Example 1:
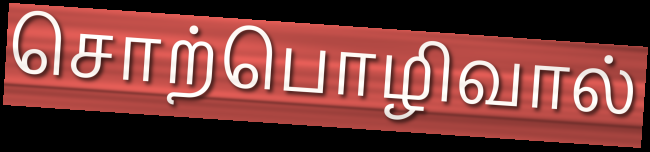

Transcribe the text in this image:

சொற்பொழிவால்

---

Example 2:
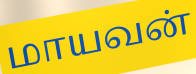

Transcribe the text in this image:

மாயவன்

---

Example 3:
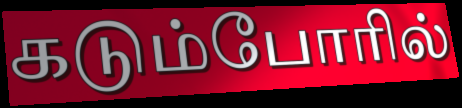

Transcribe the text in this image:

கடும்போரில்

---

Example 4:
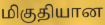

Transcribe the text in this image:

மிகுதியான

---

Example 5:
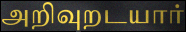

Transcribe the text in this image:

அறிவுறடயார்